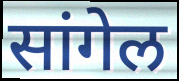
सांगेल